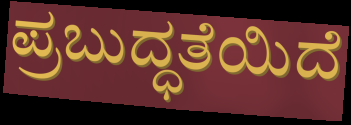
ಪ್ರಬುದ್ಧತೆಯಿದೆ